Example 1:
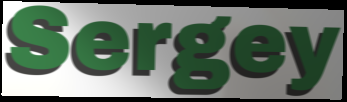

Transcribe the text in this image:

Sergey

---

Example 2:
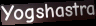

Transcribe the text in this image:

Yogshastra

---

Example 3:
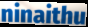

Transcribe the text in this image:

ninaithu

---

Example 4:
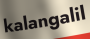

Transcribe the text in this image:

kalangalil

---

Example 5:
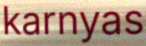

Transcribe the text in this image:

karnyas